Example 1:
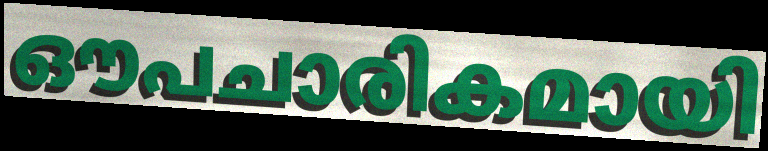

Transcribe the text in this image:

ഔപചാരികമായി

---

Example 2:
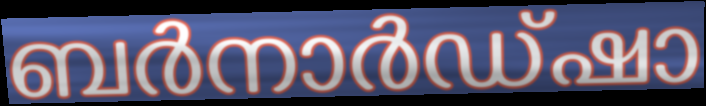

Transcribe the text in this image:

ബർനാർഡ്ഷാ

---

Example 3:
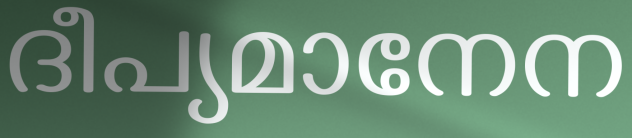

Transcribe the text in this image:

ദീപ്യമാനേന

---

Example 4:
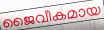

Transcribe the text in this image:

ജൈവീകമായ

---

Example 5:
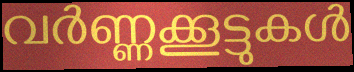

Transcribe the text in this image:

വർണ്ണക്കൂട്ടുകൾ